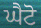
ਘੈਟੋ